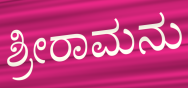
ಶ್ರೀರಾಮನು